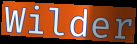
Wilder